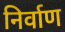
निर्वाण